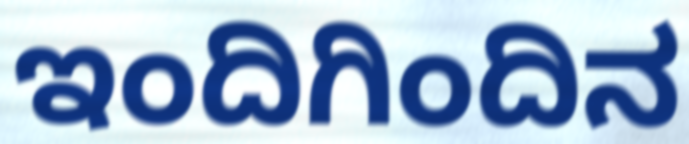
ಇಂದಿಗಿಂದಿನ